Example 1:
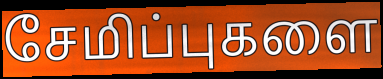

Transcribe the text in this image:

சேமிப்புகளை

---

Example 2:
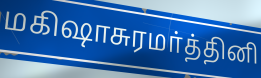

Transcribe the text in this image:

மகிஷாசுரமர்த்தினி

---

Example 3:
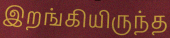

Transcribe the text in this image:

இறங்கியிருந்த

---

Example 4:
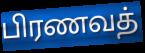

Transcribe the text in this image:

பிரணவத்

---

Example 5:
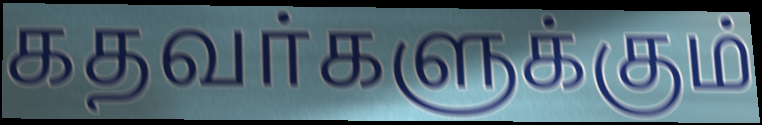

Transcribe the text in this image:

கதவர்களுக்கும்